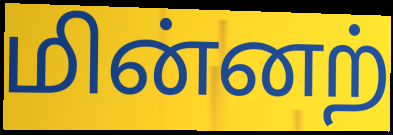
மின்னற்